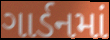
ગાર્ડનમાં